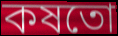
কষতো